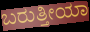
ಬರುತ್ತೀಯಾ